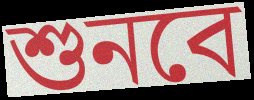
শুনবে